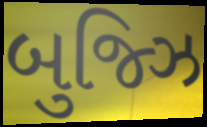
બુજ્ઝિ